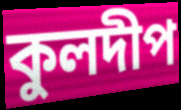
কুলদীপ